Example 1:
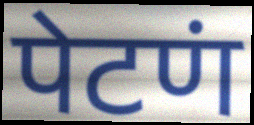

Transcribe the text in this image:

पेटणं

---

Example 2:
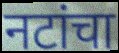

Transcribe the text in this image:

नटांचा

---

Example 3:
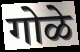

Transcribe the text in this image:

गोळे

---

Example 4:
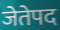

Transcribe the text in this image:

जेतेपद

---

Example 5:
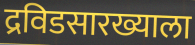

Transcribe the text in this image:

द्रविडसारख्याला